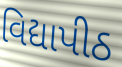
વિદ્યાપીઠ